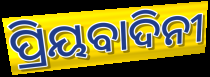
ପ୍ରିୟବାଦିନୀ